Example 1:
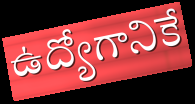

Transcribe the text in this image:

ఉద్యోగానికే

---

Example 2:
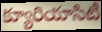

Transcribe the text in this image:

క్యూరియాసిటీ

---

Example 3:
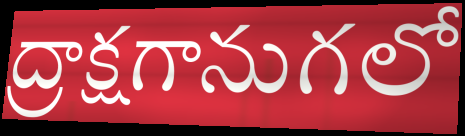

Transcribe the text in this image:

ద్రాక్షగానుగలో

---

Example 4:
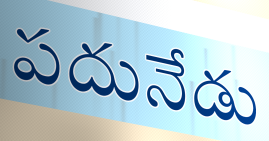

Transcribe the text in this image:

పదునేడు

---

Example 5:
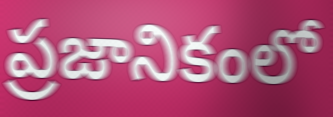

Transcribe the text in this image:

ప్రజానికంలో